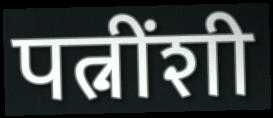
पत्नींशी